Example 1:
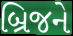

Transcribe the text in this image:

બ્રિજને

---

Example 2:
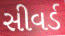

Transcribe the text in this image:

સીવર્ડ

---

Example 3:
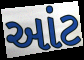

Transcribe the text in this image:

આંટ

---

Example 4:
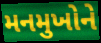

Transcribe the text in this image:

મનમુખોને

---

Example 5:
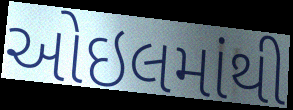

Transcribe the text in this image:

ઓઇલમાંથી